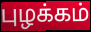
புழக்கம்